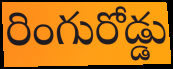
రింగురోడ్డు